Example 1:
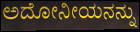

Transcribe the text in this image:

ಅದೋನೀಯನನ್ನು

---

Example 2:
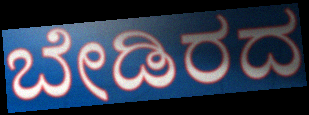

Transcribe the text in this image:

ಬೇಡಿರದ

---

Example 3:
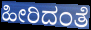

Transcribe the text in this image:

ಹೀರಿದಂತೆ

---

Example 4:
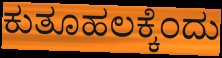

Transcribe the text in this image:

ಕುತೂಹಲಕ್ಕೆಂದು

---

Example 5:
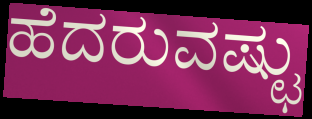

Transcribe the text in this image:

ಹೆದರುವಷ್ಟು